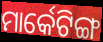
ମାର୍କେଟିଙ୍ଗ